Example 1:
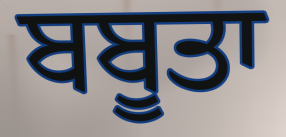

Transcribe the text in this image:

ਬਬੂਤਾ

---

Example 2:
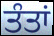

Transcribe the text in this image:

ਤੰਤਾਂ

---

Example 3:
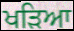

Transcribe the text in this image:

ਖੜਿਆ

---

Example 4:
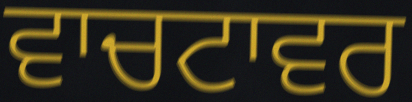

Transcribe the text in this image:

ਵਾਚਟਾਵਰ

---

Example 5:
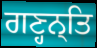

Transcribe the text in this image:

ਗਣ੍ਹਨ੍ਤਿ